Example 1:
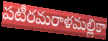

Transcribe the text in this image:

పటీరమరాళమల్లికా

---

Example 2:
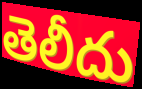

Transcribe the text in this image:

తెలీదు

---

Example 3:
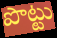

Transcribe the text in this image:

పొట్టు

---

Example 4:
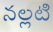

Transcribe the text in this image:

నల్లటి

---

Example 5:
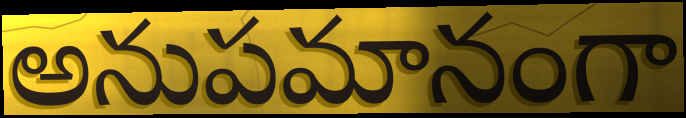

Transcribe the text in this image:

అనుపమానంగా